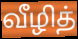
வீழித்